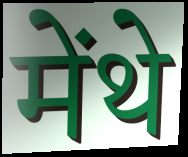
मेंथे